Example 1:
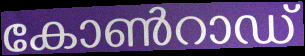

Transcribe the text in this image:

കോൺറാഡ്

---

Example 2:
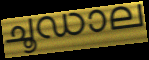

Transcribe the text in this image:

ചൂഡാല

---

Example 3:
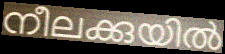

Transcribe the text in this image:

നീലക്കുയിൽ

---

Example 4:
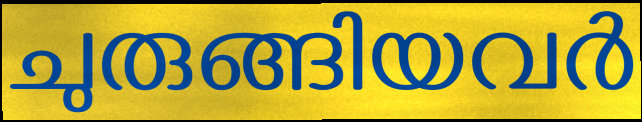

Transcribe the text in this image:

ചുരുങ്ങിയവർ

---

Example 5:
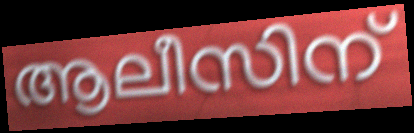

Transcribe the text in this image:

ആലീസിന്